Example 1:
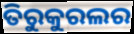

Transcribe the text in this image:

ତିରୁକୁରଲର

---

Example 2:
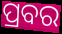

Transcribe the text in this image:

ପ୍ରବର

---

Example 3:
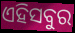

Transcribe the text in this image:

ଏହିସବୁର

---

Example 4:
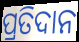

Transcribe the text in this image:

ପ୍ରତିଦାନ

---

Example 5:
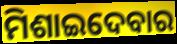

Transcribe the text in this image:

ମିଶାଇଦେବାର